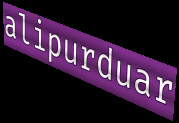
alipurduar